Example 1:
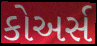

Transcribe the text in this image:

કોઅર્સ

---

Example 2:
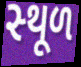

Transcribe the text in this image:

સ્‍થૂળ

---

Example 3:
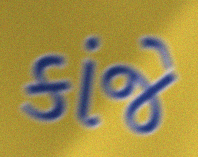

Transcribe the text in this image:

કાંજે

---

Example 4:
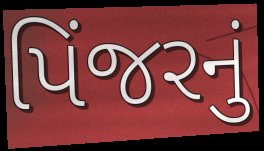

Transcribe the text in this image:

પિંજરનું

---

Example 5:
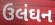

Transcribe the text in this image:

ઉલંઘન